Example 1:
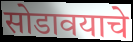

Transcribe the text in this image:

सोडावयाचे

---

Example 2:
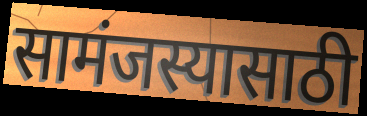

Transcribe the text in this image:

सामंजस्यासाठी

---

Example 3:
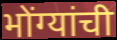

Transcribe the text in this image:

भोंग्यांची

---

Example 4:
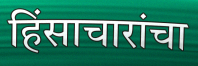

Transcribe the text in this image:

हिंसाचारांचा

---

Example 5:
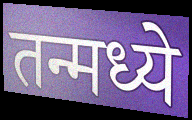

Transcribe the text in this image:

तन्मध्ये